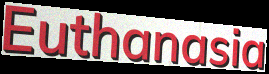
Euthanasia